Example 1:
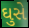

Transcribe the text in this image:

ઘુસે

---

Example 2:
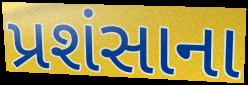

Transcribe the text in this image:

પ્રશંસાના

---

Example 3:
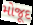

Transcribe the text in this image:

મોજૂદ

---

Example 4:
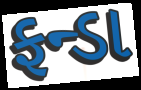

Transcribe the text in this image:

ફન્ડા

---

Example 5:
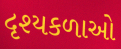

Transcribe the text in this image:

દૃશ્યકળાઓ